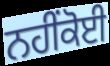
ਨਹੀਂਕੋਈ